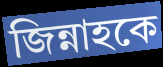
জিন্নাহকে